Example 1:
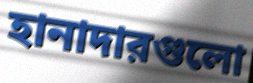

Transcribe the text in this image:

হানাদারগুলো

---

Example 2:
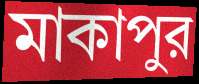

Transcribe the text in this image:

মাকাপুর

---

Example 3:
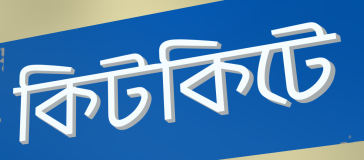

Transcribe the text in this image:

কিটকিটে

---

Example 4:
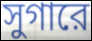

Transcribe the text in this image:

সুগারে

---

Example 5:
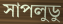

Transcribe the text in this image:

সাপলুডু